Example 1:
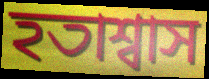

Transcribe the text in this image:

হতাশ্বাস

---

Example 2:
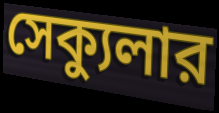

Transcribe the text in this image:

সেক্যুলার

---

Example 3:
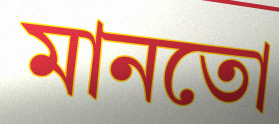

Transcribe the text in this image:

মানতো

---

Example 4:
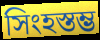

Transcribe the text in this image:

সিংহস্তম্ভ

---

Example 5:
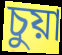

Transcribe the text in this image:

চুয়া